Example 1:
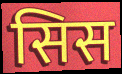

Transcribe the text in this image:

सिस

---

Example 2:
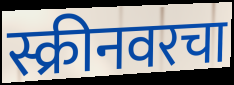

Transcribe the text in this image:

स्क्रीनवरचा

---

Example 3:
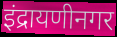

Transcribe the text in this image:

इंद्रायणीनगर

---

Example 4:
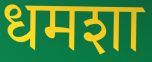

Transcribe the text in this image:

धमशा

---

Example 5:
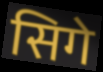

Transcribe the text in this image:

सिगे